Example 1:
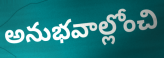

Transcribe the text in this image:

అనుభవాల్లోంచి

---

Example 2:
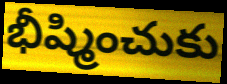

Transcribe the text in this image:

భీష్మించుకు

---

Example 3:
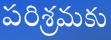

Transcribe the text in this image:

పరిశ్రమకు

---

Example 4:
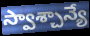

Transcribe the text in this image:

స్వాశ్చాన్యే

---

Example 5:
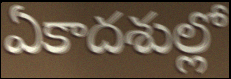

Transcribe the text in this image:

ఏకాదశుల్లో